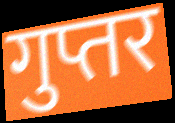
गुप्तर